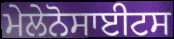
ਮੇਲੇਨੋਸਾਈਟਸ